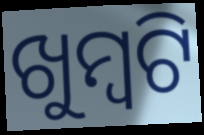
ଖୁମ୍ବଟି